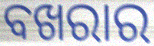
ବଖରାର